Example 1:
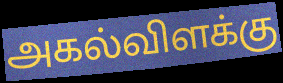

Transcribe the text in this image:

அகல்விளக்கு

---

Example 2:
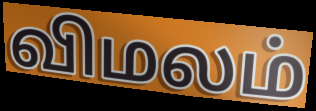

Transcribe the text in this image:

விமலம்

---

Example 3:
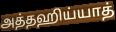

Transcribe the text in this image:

அத்தஹிய்யாத்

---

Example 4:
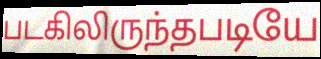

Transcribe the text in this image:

படகிலிருந்தபடியே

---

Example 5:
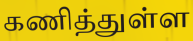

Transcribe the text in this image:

கணித்துள்ள